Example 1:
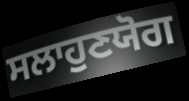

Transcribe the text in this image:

ਸਲਾਹੁਣਯੋਗ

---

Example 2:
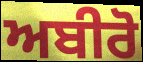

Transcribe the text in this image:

ਅਬੀਰੋ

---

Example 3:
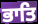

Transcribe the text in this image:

ਭਾਤਿ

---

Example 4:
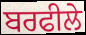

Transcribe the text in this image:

ਬਰਫੀਲੇ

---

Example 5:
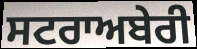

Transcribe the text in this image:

ਸਟਰਾਅਬੇਰੀ